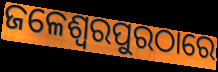
ଜଳେଶ୍ୱରପୁରଠାରେ